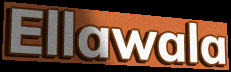
Ellawala